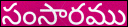
సంసారము